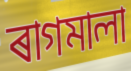
ৰাগমালা